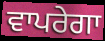
ਵਾਪਰੇਗਾ